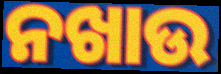
ନଖାଉ